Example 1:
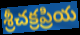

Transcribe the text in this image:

శ్రీచక్రప్రియ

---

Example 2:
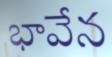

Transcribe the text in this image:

భావేన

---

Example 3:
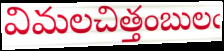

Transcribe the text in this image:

విమలచిత్తంబులఁ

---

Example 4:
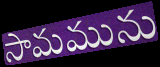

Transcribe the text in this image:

సామమును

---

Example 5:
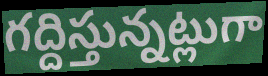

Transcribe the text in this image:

గద్దిస్తున్నట్లుగా